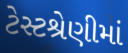
ટેસ્ટશ્રેણીમાં